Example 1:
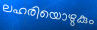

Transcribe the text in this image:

ലഹരിയൊഴുകും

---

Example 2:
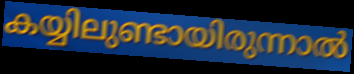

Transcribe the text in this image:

കയ്യിലുണ്ടായിരുന്നാൽ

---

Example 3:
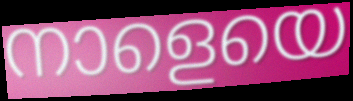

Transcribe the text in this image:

നാളെയെ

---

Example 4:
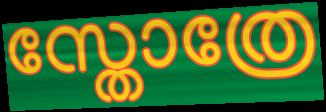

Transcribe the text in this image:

സ്തോത്രേ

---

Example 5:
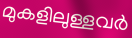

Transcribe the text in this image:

മുകളിലുള്ളവർ